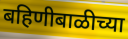
बहिणीबाळीच्या